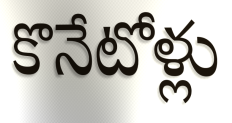
కొనేటోళ్లు